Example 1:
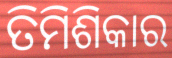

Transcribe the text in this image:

ତିମିଶିକାର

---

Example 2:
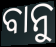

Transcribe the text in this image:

ବାନୁ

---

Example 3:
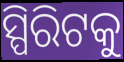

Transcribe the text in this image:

ସ୍ପିରିଟକୁ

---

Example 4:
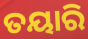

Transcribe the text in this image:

ତୟାରି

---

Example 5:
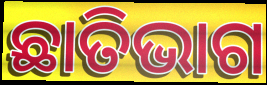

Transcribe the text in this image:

ଛାତିଭାଗ